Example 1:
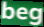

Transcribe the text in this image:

beg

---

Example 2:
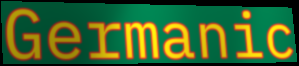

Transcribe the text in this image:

Germanic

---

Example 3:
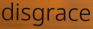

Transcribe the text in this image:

disgrace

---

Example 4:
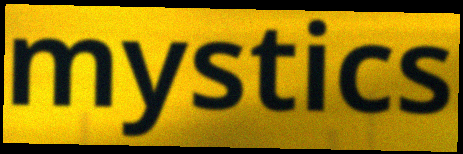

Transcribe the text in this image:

mystics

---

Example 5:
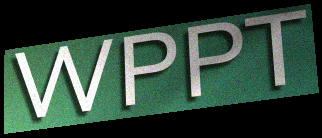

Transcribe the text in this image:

WPPT